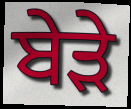
ਬੇੜੇ